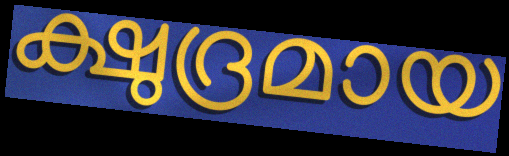
ക്ഷുദ്രമായ